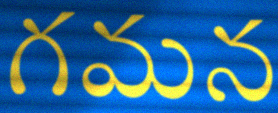
గమన